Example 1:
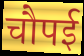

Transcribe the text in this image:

चौपई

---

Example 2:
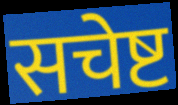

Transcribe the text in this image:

सचेष्ट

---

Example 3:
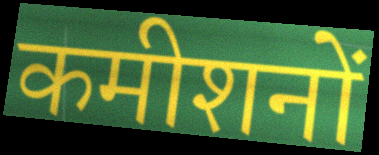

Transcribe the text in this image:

कमीशनों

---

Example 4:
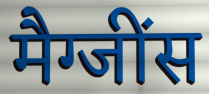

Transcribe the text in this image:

मैग्जींस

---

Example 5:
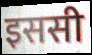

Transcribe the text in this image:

इससी